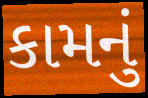
કામનું